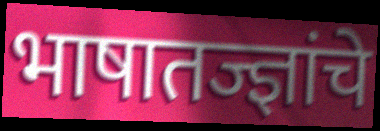
भाषातज्ज्ञांचे